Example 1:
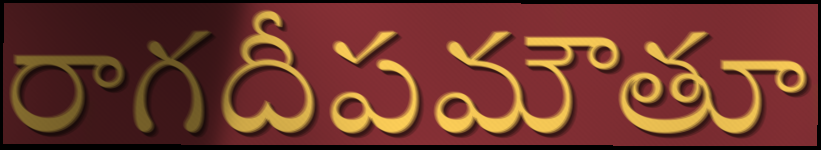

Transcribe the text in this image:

రాగదీపమౌతూ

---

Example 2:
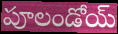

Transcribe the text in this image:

పూలండోయ్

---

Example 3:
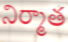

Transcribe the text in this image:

నిర్మాత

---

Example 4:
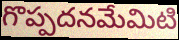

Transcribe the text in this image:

గొప్పదనమేమిటి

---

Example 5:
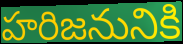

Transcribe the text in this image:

హరిజనునికి